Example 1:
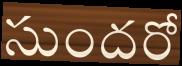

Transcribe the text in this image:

సుందరో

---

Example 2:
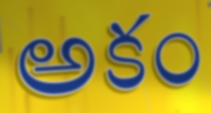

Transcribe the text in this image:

అకం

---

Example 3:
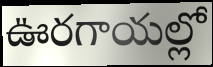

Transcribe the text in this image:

ఊరగాయల్లో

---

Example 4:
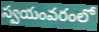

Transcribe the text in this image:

స్వయంవరంలో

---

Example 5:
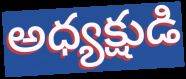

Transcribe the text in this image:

అధ్యక్షుడి